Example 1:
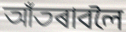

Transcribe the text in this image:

আঁতৰাবলৈ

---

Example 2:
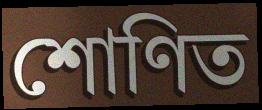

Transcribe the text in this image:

শোণিত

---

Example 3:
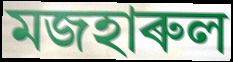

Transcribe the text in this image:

মজহাৰুল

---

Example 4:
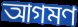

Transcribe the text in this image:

আগমণ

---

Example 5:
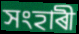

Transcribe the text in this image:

সংহাৰী